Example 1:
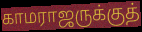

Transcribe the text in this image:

காமராஜருக்குத்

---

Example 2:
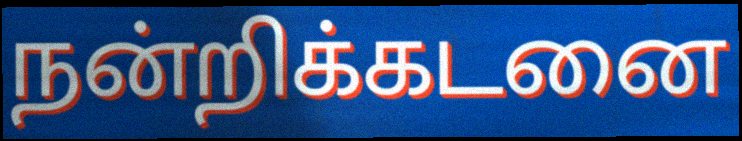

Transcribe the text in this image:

நன்றிக்கடனை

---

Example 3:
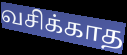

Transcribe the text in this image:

வசிக்காத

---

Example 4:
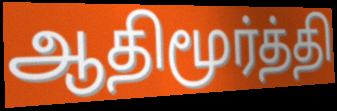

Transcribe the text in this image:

ஆதிமூர்த்தி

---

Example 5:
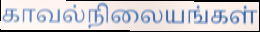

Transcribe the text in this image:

காவல்நிலையங்கள்